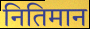
नितिमान